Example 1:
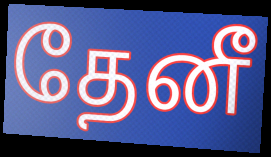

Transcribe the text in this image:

தேனீ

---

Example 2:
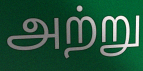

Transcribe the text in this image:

அற்று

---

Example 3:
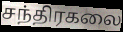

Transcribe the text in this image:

சந்திரகலை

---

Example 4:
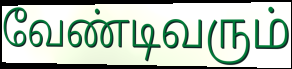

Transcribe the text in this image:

வேண்டிவரும்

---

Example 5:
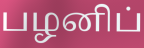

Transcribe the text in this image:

பழனிப்